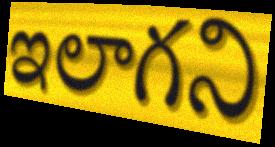
ఇలాగని